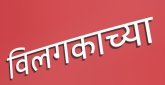
विलगकाच्या